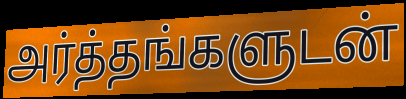
அர்த்தங்களுடன்